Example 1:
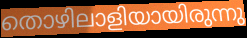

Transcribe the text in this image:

തൊഴിലാളിയായിരുന്നു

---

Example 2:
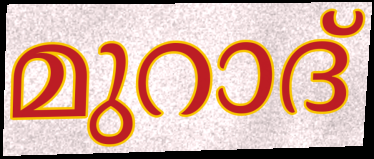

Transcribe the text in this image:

മുറാദ്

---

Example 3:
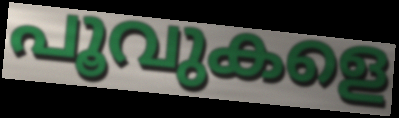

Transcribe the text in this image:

പൂവുകളെ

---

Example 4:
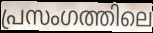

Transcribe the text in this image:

പ്രസംഗത്തിലെ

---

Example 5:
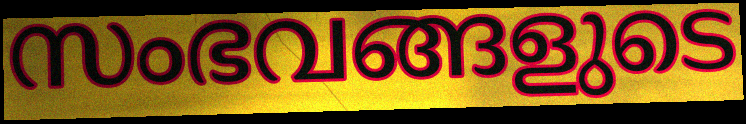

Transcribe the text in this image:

സംഭവങ്ങളുടെ